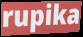
rupika